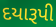
દયારૂપી